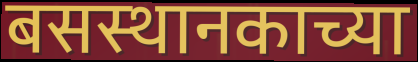
बसस्थानकाच्या